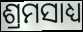
ଶ୍ରମସାଧ୍ୟ